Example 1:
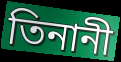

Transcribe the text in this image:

তিনানী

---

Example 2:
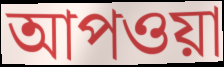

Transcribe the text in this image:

আপওয়া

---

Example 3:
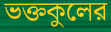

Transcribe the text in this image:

ভক্তকুলের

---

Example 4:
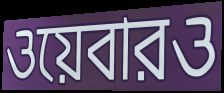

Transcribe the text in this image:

ওয়েবারও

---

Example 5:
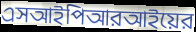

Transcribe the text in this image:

এসআইপিআরআইয়ের